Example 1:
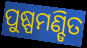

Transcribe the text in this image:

ପୁଷ୍ପମଣ୍ଡିତ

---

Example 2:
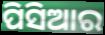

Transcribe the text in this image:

ପିସିଆର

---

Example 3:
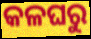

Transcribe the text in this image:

କଳଘରୁ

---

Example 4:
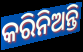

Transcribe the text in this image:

କରିନିଅନ୍ତି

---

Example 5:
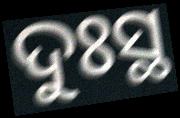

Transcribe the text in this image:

ଦୁଃସ୍ଥ